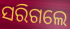
ସରିଗଲେ